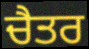
ਚੈਤਰ